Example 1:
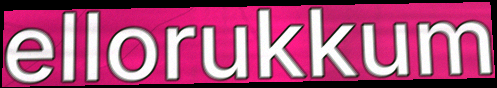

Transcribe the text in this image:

ellorukkum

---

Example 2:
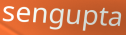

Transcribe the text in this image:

sengupta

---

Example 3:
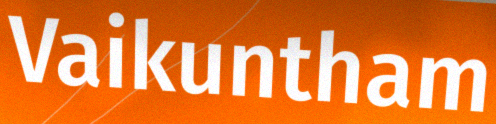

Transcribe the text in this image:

Vaikuntham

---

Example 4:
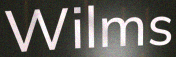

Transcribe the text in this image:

Wilms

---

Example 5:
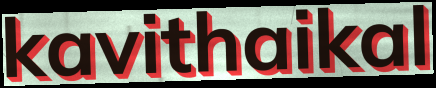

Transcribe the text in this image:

kavithaikal